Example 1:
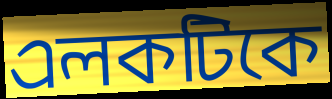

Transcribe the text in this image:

এলকটিকে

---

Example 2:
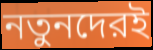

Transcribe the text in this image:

নতুনদেরই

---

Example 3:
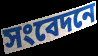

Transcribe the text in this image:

সংবেদনে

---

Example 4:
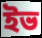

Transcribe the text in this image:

ইভ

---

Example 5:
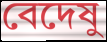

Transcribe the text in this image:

বেদেষু